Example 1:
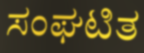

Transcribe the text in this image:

ಸಂಘಟಿತ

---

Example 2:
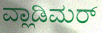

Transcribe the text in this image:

ವ್ಲಾಡಿಮರ್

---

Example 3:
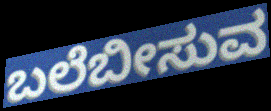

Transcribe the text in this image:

ಬಲೆಬೀಸುವ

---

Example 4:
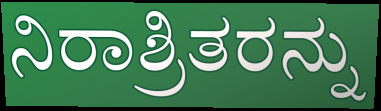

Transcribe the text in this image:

ನಿರಾಶ್ರಿತರನ್ನು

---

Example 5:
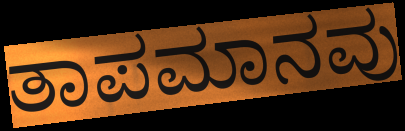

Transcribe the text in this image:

ತಾಪಮಾನವು